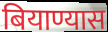
बियाण्यास